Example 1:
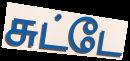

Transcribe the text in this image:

சுட்டே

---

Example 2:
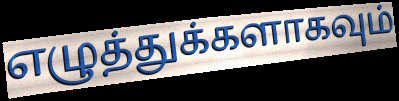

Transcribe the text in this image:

எழுத்துக்களாகவும்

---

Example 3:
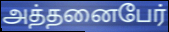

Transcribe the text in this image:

அத்தனைபேர்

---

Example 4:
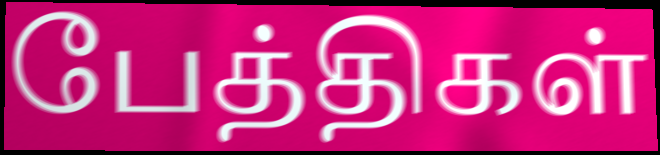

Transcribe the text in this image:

பேத்திகள்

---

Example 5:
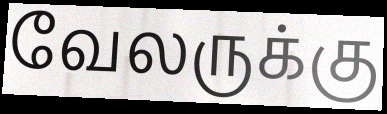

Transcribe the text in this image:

வேலருக்கு